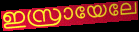
ഇസ്രായേലേ